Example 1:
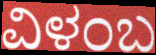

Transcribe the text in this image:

ವಿಳಂಬ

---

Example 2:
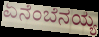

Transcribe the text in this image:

ಏನೆಂಬೆನಯ್ಯ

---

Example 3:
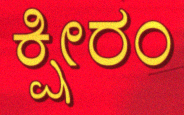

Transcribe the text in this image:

ಕ್ಷೀರಂ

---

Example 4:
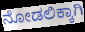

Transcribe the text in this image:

ನೋಡಲಿಕ್ಕಾಗಿ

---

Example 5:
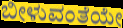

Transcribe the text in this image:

ಬೀಳುವಂತೆಯೇ